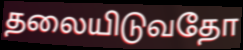
தலையிடுவதோ